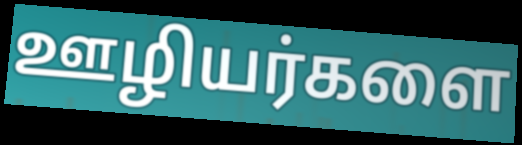
ஊழியர்களை